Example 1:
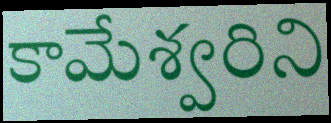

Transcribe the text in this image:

కామేశ్వరిని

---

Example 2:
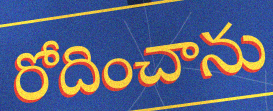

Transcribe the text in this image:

రోదించాను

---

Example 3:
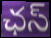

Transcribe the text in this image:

ఛస్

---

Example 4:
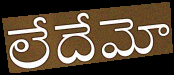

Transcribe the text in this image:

లేదేమో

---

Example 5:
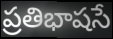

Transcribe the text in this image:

ప్రతిభాషసే